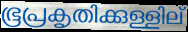
ഭൂപ്രകൃതിക്കുള്ളില്